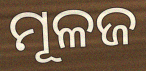
ମୂଳଜ